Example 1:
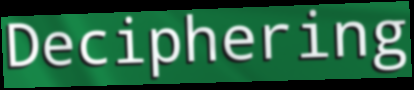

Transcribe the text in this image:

Deciphering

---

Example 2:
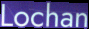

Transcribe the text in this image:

Lochan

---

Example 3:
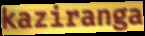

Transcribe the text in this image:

kaziranga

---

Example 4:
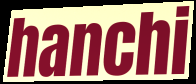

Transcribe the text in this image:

hanchi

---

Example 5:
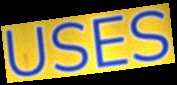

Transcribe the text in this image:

USES